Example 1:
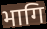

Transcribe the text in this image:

भागि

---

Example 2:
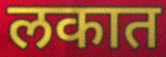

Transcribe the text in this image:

लकात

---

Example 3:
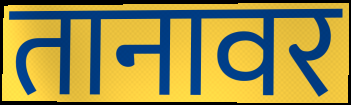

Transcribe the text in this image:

तानावर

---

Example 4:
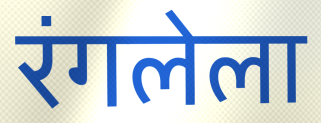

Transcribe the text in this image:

रंगलेला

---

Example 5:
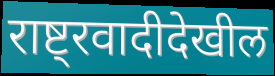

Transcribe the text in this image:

राष्ट्रवादीदेखील